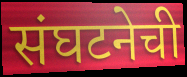
संघटनेची